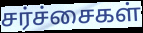
சர்ச்சைகள்